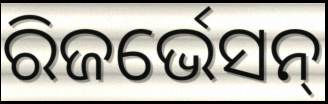
ରିଜର୍ଭେସନ୍